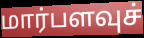
மார்பளவுச்